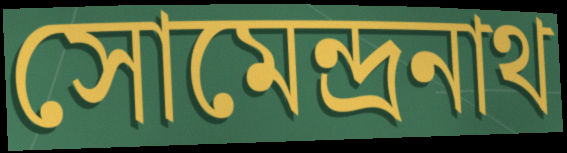
সোমেন্দ্রনাথ